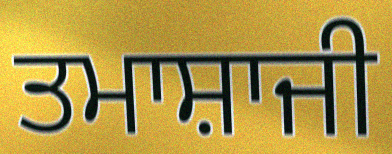
ਤਮਾਸ਼ਾਜੀ